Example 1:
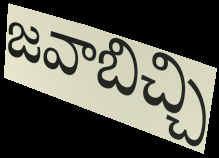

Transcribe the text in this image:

జవాబిచ్చి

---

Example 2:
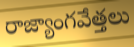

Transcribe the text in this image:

రాజ్యాంగవేత్తలు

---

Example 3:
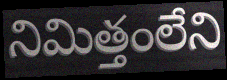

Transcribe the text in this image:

నిమిత్తంలేని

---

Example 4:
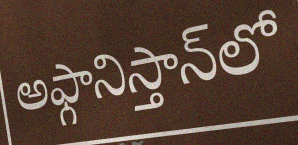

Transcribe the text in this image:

అఫ్గానిస్తాన్‌లో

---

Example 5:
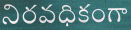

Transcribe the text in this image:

నిరవధికంగా